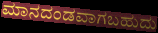
ಮಾನದಂಡವಾಗಬಹುದು